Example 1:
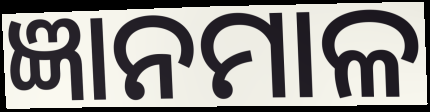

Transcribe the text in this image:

ଜ୍ଞାନମାଳ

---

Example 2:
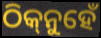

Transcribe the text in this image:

ଠିକ୍‌ନୁହେଁ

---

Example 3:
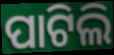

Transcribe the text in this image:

ପାଟିଲି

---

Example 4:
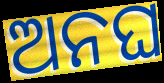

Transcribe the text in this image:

ଅନଘ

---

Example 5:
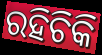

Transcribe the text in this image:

ରହିଚିକି